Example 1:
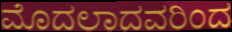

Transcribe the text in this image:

ಮೊದಲಾದವರಿಂದ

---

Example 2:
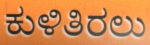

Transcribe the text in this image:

ಕುಳಿತಿರಲು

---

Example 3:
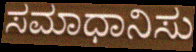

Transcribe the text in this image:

ಸಮಾಧಾನಿಸು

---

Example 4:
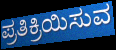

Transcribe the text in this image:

ಪ್ರತಿಕ್ರಿಯಿಸುವ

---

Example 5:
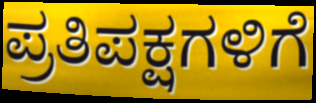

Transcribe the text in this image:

ಪ್ರತಿಪಕ್ಷಗಳಿಗೆ